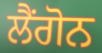
ਲੈਂਗੋਨ